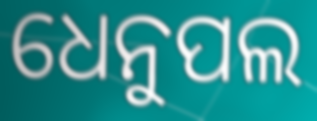
ଧେନୁପଲ